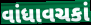
વાંધાવચકાં